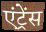
एंट्रेंस